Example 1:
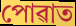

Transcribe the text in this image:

পোৱাত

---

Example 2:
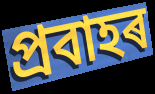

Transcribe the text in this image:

প্ৰবাহৰ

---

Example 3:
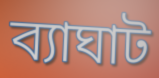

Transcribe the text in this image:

ব্যাঘাট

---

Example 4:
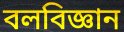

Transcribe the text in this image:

বলবিজ্ঞান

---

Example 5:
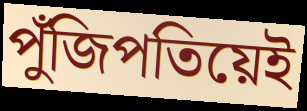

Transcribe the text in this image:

পুঁজিপতিয়েই